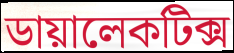
ডায়ালেকটিক্স